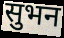
सुभन